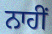
ਨਾਹੀਂ